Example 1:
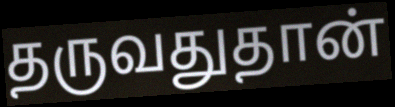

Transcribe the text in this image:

தருவதுதான்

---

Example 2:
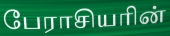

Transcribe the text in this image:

பேராசியரின்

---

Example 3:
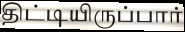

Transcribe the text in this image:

திட்டியிருப்பார்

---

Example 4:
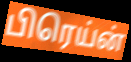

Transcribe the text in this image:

பிரெய்ன்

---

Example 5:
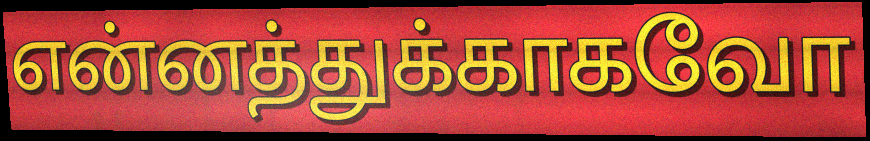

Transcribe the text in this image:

என்னத்துக்காகவோ